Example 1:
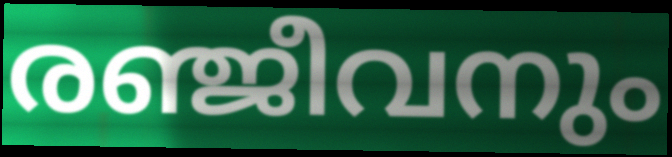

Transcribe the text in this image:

രഞ്ജീവനും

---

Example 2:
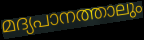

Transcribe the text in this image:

മദ്യപാനത്താലും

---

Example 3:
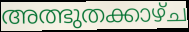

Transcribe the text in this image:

അത്ഭുതക്കാഴ്ച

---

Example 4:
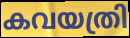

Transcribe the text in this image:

കവയത്രി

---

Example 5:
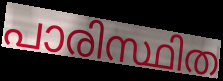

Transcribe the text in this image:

പാരിസ്ഥിത